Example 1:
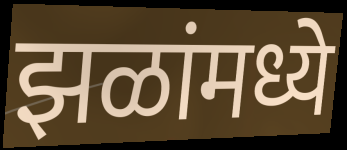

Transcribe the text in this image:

झळांमध्ये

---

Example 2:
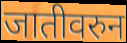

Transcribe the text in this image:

जातीवरुन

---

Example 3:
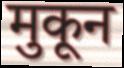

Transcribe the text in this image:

मुकून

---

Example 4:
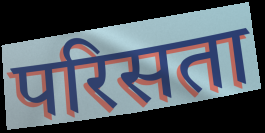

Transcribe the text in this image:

परिसता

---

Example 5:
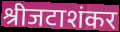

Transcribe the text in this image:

श्रीजटाशंकर